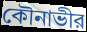
কৌনাভীর